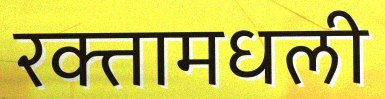
रक्तामधली